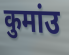
कुमांउ